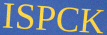
ISPCK